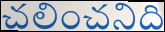
చలించనిది